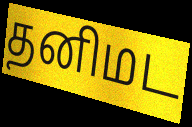
தனிமட